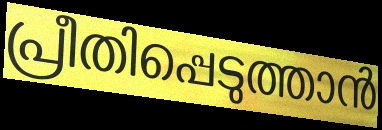
പ്രീതിപ്പെടുത്താൻ